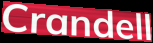
Crandell